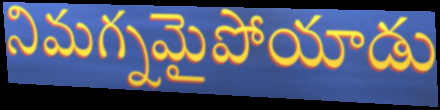
నిమగ్నమైపోయాడు